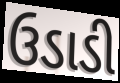
ઉડાડી